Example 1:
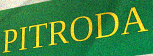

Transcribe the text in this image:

PITRODA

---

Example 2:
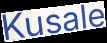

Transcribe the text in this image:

Kusale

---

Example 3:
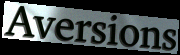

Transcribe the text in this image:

Aversions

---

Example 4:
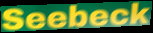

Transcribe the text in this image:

Seebeck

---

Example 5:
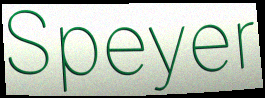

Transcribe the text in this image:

Speyer